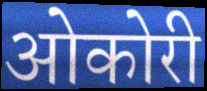
ओकोरी